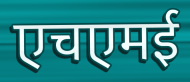
एचएमई